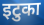
इटुका